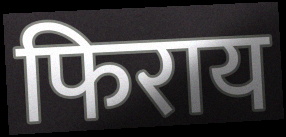
फिराय